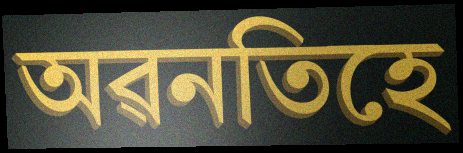
অৱনতিহে